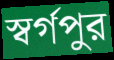
স্বর্গপুর